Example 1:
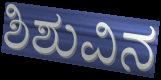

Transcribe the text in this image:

ಶಿಶುವಿನ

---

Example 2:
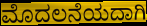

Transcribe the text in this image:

ಮೊದಲನೆಯದಾಗಿ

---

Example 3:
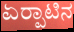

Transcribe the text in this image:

ಏರ‍್ಪಾಟಿನ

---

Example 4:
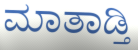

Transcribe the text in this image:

ಮಾತಾಡ್ತಿ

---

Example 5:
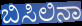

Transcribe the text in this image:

ಬಿಸಿಲಿನಾ